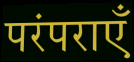
परंपराएँ